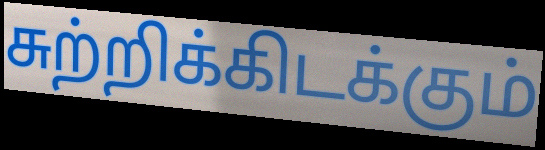
சுற்றிக்கிடக்கும்